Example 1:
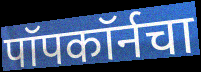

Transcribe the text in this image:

पॉपकॉर्नचा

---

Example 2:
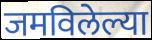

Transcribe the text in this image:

जमविलेल्या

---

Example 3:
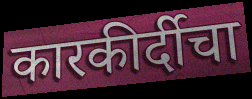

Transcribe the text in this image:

कारकीर्दीचा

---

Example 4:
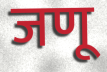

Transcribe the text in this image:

जणू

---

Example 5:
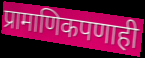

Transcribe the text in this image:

प्रामाणिकपणाही